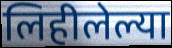
लिहीलेल्या